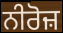
ਨੀਰੋਜ਼